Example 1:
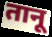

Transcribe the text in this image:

तानू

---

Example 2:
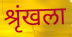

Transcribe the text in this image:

श्रृंखला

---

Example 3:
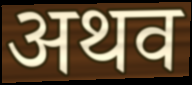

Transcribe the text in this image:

अथव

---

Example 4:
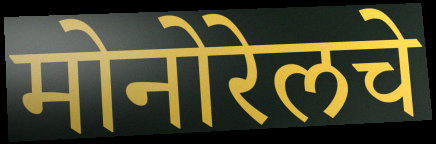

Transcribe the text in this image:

मोनोरेलचे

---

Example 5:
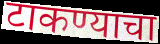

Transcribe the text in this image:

टाकण्याचा